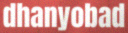
dhanyobad